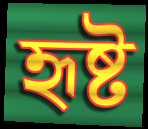
হৃষ্ট